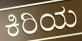
ಕಿರಿಯ